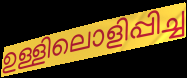
ഉള്ളിലൊളിപ്പിച്ച